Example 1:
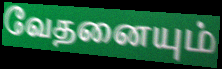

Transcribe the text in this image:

வேதனையும்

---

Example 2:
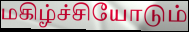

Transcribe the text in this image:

மகிழ்ச்சியோடும்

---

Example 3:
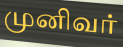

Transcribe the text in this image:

முனிவர்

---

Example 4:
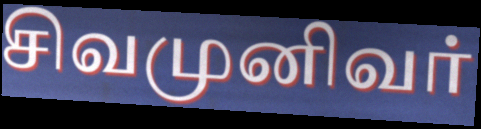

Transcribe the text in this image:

சிவமுனிவர்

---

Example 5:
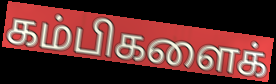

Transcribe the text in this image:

கம்பிகளைக்